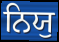
ਨਿਯੁ